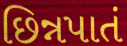
છિન્નપાતં